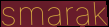
smarak